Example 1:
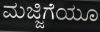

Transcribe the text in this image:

ಮಜ್ಜಿಗೆಯೂ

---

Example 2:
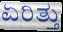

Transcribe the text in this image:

ಏರಿತ್ತು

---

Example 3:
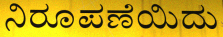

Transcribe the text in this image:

ನಿರೂಪಣೆಯಿದು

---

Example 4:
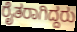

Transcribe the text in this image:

ರೈತರಾಗಿದ್ದರು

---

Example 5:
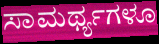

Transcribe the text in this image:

ಸಾಮರ್ಥ್ಯಗಳೂ